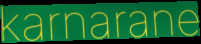
karnarane